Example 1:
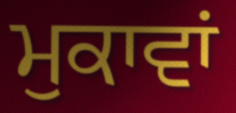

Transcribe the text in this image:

ਮੁਕਾਵਾਂ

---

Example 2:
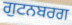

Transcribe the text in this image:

ਗੁਟਨਬਰਗ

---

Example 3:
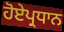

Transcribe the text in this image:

ਹੋਏਪ੍ਰਧਾਨ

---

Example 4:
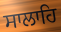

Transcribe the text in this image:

ਸਾਲਾਹਿ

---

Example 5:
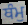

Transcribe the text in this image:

ਥੰਮੁ